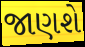
જાણશે